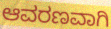
ಆವರಣವಾಗಿ